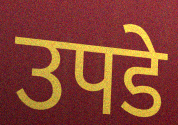
उपडे